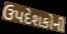
ઉપદેશકોની